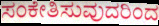
ಸಂಕೇತಿಸುವುದರಿಂದ